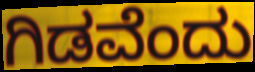
ಗಿಡವೆಂದು